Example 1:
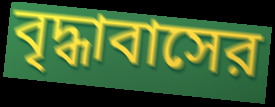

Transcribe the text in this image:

বৃদ্ধাবাসের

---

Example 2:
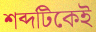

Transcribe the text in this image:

শব্দটিকেই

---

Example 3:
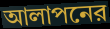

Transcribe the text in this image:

আলাপনের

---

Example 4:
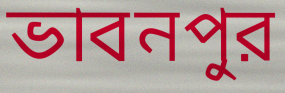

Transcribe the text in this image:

ভাবনপুর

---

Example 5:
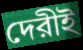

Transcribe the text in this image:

দেরীই